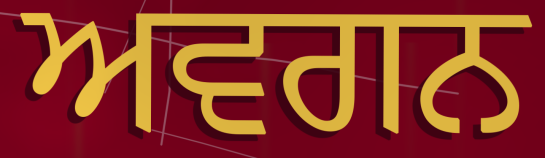
ਅਵਗਨ